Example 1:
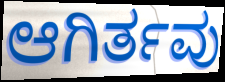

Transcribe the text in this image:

ಆಗಿರ್ತವು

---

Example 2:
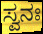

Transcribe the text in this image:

ಸ್ವನಃ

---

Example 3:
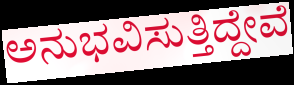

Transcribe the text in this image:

ಅನುಭವಿಸುತ್ತಿದ್ದೇವೆ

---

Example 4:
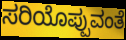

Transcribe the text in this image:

ಸರಿಯೊಪ್ಪುವಂತೆ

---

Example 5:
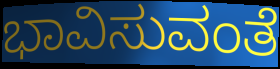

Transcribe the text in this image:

ಭಾವಿಸುವಂತೆ